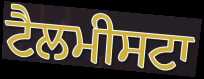
ਟੈਲਮੀਸਟਾ